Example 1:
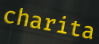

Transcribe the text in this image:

charita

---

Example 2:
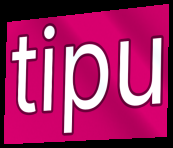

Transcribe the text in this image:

tipu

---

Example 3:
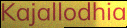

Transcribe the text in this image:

Kajallodhia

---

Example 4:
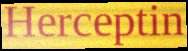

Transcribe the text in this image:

Herceptin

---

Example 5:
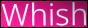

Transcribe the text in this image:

Whish